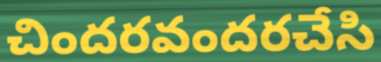
చిందరవందరచేసి